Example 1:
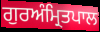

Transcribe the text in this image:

ਗੁਰਅੰਮ੍ਰਿਤਪਾਲ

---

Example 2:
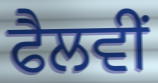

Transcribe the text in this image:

ਫੈਲਵੀਂ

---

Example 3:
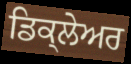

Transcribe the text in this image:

ਡਿਕ੍ਲੇਅਰ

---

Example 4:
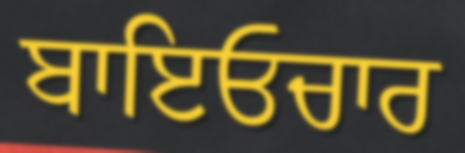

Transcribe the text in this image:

ਬਾਇਓਚਾਰ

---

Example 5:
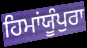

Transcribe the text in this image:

ਹਿਮਾਂਯੂੰਪੁਰਾ